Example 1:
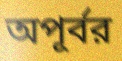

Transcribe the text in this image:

অপূর্বর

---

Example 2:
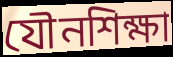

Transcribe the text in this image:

যৌনশিক্ষা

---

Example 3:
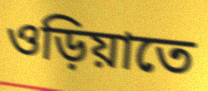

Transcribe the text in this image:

ওড়িয়াতে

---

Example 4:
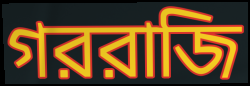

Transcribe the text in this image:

গররাজি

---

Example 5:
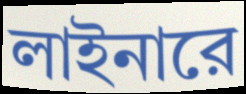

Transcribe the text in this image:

লাইনারে